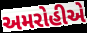
અમરોહીએ